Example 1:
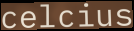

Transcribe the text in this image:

celcius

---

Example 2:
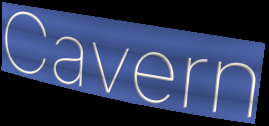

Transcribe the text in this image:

Cavern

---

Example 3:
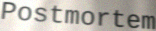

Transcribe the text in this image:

Postmortem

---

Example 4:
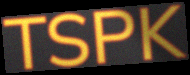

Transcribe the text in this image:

TSPK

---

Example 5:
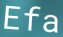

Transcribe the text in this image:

Efa